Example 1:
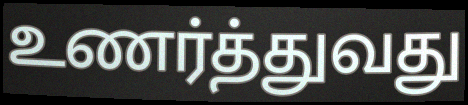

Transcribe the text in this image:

உணர்த்துவது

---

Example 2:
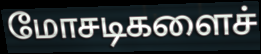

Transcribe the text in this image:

மோசடிகளைச்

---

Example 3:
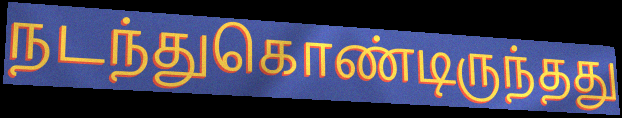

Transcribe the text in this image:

நடந்துகொண்டிருந்தது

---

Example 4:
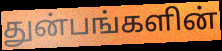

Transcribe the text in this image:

துன்பங்களின்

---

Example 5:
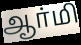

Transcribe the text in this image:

ஆர்மி